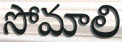
సోమాలి